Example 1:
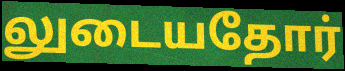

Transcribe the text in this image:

லுடையதோர்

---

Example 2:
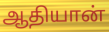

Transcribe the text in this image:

ஆதியான்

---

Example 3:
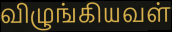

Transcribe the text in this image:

விழுங்கியவள்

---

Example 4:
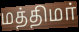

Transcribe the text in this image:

மத்திமர்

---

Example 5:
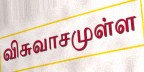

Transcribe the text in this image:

விசுவாசமுள்ள